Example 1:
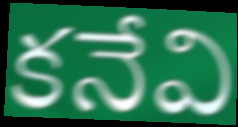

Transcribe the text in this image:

కనేవి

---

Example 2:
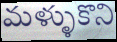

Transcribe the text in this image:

మళ్ళుకొని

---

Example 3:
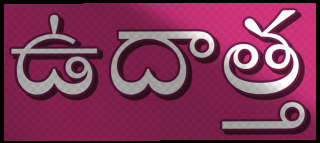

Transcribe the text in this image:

ఉదాత్త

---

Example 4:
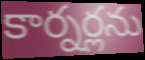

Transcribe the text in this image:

కార్నర్లను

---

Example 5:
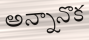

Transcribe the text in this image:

అన్నానొక